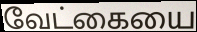
வேட்கையை